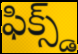
ఫిక్స్డ్